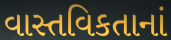
વાસ્તવિકતાનાં